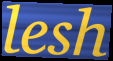
lesh